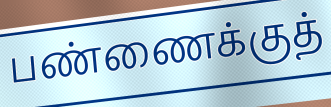
பண்ணைக்குத்